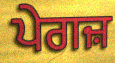
ਪੇਗਜ਼